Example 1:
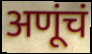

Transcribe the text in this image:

अणूंचं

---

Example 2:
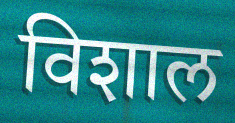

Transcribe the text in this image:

विशाल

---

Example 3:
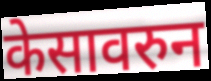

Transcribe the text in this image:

केसावरुन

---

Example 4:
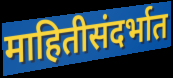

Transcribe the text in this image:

माहितीसंदर्भात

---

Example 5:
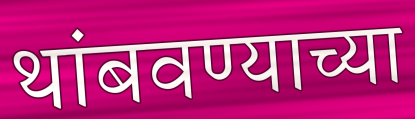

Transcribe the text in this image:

थांबवण्याच्या